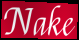
Nake